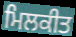
ਮਿਲਕੀਤ